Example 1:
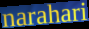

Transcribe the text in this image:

narahari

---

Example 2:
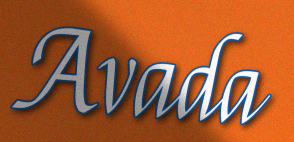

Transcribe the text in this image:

Avada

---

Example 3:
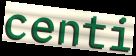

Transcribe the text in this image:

centi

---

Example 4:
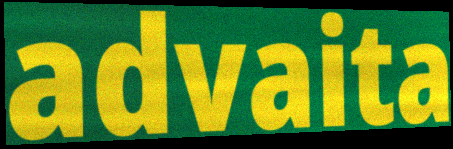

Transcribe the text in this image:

advaita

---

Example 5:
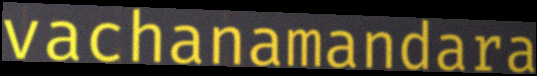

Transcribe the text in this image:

vachanamandara